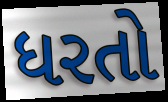
ધરતો